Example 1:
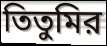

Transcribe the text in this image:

তিতুমির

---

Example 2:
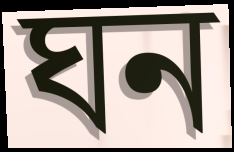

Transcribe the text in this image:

ঘন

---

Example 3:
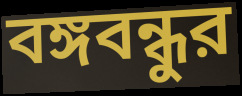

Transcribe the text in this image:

বঙ্গবন্ধুর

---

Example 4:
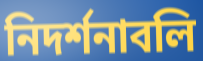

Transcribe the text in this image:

নিদর্শনাবলি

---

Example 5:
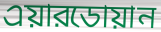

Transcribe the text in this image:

এয়ারডোয়ান